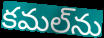
కమల్‌ను